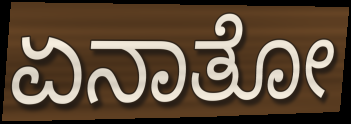
ಏನಾತೋ